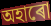
অহাৰো